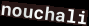
nouchali